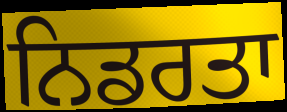
ਨਿਡਰਤਾ